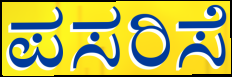
ಪಸರಿಸೆ